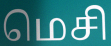
மெசி